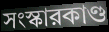
সংস্কারকাণ্ড